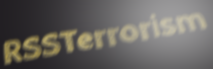
RSSTerrorism